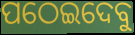
ପଠେଇଦେବୁ